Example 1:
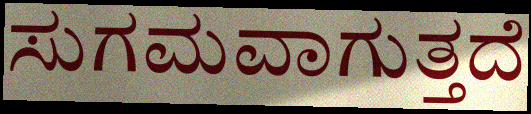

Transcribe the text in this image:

ಸುಗಮವಾಗುತ್ತದೆ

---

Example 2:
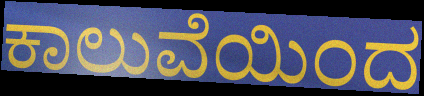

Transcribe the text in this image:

ಕಾಲುವೆಯಿಂದ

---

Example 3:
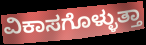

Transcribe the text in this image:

ವಿಕಾಸಗೊಳ್ಳುತ್ತಾ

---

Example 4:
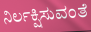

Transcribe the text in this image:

ನಿರ್ಲಕ್ಷಿಸುವಂತೆ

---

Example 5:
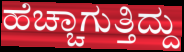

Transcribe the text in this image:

ಹೆಚ್ಚಾಗುತ್ತಿದ್ದು